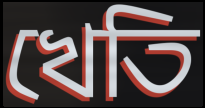
খেতি